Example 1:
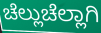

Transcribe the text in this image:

ಚೆಲ್ಲುಚೆಲ್ಲಾಗಿ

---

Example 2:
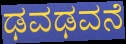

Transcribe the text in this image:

ಢವಢವನೆ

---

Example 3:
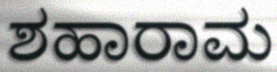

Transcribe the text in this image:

ಶಹಾರಾಮ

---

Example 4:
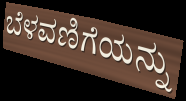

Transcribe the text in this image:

ಬೆಳವಣಿಗೆಯನ್ನು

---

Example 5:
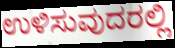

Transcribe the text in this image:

ಉಳಿಸುವುದರಲ್ಲಿ